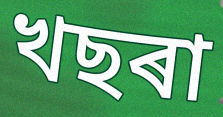
খছৰা